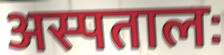
अस्पतालः